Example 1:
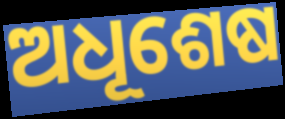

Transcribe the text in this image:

ଅଧୂଶେଷ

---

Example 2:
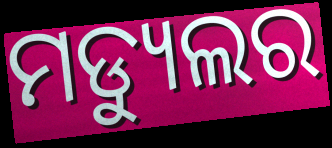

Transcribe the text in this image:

ମଡ୍ୟୁଲର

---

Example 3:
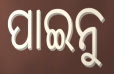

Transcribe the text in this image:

ପାଇନୁ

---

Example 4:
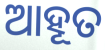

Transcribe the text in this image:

ଆହୂତ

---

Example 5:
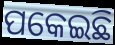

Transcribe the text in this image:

ପକେଇଛି